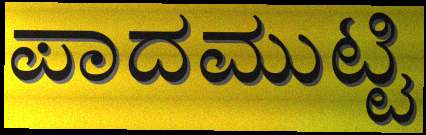
ಪಾದಮುಟ್ಟಿ